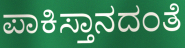
ಪಾಕಿಸ್ತಾನದಂತೆ